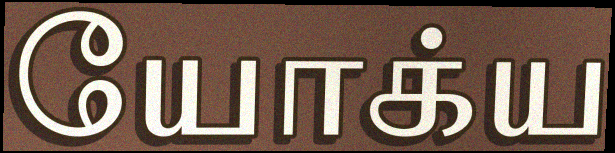
யோக்ய